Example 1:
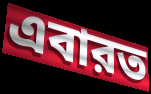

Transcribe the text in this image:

এবারত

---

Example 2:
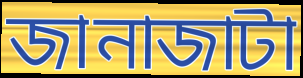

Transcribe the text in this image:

জানাজাটা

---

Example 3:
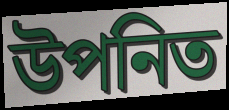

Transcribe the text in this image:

উপনিত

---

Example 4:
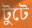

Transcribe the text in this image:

টুটে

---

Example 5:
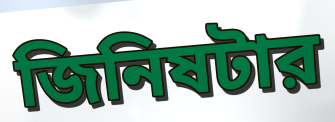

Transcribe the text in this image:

জিনিষটার